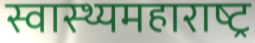
स्वास्थ्यमहाराष्ट्र